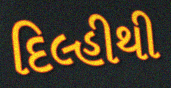
દિલ્હીથી